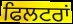
ਫਿਲਟਰਾਂ